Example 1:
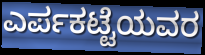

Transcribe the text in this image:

ಎರ್ಪಕಟ್ಟೆಯವರ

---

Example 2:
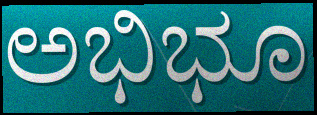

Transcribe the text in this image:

ಅಭಿಭೂ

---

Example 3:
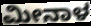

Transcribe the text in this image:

ಮೀನಾಳ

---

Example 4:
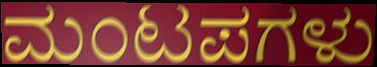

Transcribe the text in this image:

ಮಂಟಪಗಳು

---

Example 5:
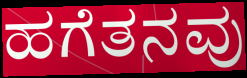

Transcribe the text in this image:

ಹಗೆತನವು